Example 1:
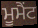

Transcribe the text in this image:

ਮੂਮੈਂਟ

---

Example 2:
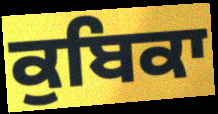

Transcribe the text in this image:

ਕੁਬਿਕਾ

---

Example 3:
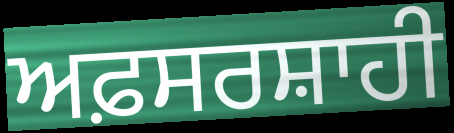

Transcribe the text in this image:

ਅਫ਼ਸਰਸ਼ਾਹੀ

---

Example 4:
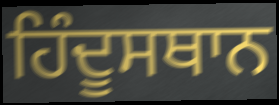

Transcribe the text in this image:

ਹਿੰਦੂਸਥਾਨ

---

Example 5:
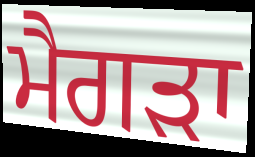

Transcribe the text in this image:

ਮੈਗੜਾ